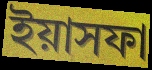
ইয়াসফা